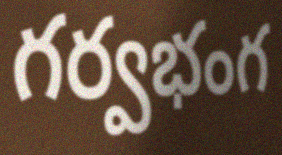
గర్వభంగ